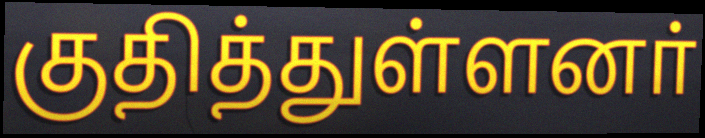
குதித்துள்ளனர்